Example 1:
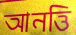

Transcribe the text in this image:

আনত্তি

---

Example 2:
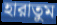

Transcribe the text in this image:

হারাতুম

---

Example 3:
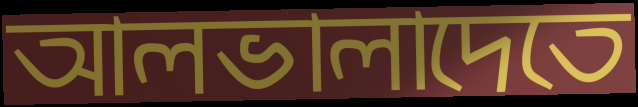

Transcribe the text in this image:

আলভালাদেতে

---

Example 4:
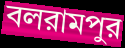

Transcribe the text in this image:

বলরামপুর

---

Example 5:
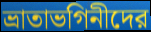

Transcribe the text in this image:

ভ্রাতাভগিনীদের